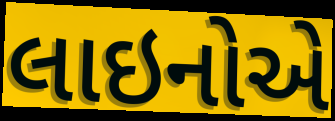
લાઇનોએ